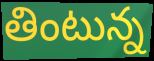
తింటున్న